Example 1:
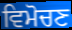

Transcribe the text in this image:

ਵਿਮੋਚਣ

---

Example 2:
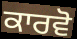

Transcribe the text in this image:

ਕਾਰਵੋ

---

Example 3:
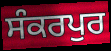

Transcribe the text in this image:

ਸੰਕਰਪੁਰ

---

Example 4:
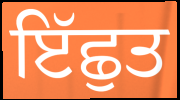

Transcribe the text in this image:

ਇੱਛੁਤ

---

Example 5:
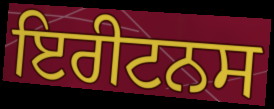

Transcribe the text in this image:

ਇਰੀਟਨਸ